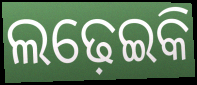
ଲଢ଼େଇକି